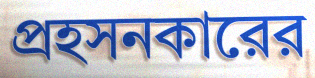
প্রহসনকারের